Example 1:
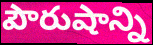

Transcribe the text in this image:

పౌరుషాన్ని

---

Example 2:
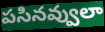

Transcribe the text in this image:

పసినవ్వులా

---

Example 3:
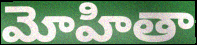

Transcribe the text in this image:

మోహితా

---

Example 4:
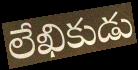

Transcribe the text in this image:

లేఖికుడు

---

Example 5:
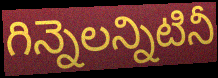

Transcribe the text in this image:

గిన్నెలన్నిటినీ